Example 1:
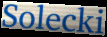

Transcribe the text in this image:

Solecki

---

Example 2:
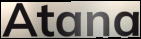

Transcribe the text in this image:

Atana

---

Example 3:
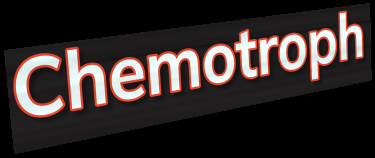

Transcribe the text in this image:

Chemotroph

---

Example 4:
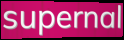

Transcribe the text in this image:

supernal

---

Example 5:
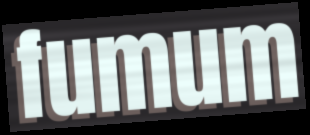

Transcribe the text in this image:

fumum